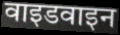
वाइडवाइन